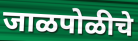
जाळपोळीचे